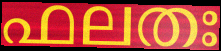
ഫലതഃ